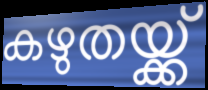
കഴുതയ്ക്ക്